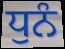
ਧੁਨੰ